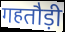
गहतौड़ी